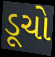
ડૂચો